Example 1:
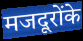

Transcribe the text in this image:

मजदूरोंके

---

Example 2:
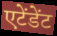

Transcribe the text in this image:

एटेंडेंट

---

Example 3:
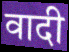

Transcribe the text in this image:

वादी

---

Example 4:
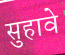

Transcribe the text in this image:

सुहावे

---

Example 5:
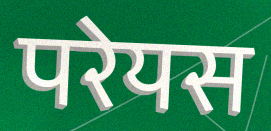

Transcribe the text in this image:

परेयस